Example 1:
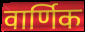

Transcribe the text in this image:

वार्णिक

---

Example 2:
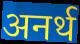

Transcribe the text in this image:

अनर्थ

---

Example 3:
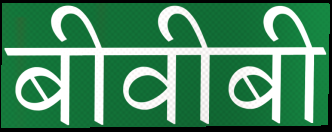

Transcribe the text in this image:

बीवीबी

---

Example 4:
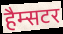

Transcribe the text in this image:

हैम्सटर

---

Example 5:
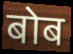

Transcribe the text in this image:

बोब